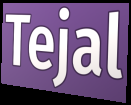
Tejal